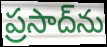
ప్రసాద్‌ను